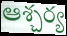
ఆశ్చర్య